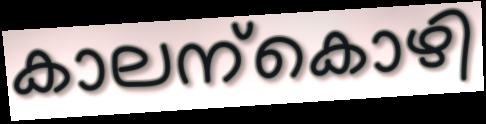
കാലന്കൊഴി